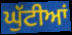
ਘੁੱਟੀਆਂ